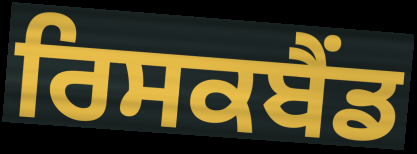
ਰਿਸਕਬੈਂਡ